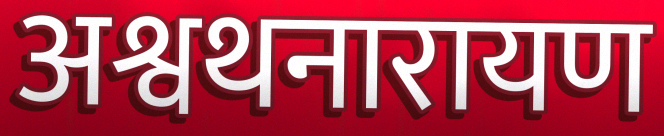
अश्वथनारायण